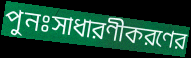
পুনঃসাধারণীকরণের